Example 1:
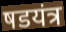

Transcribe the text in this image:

षडयंत्र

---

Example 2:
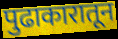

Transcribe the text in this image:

पुढाकारातून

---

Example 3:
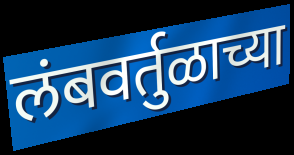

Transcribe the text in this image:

लंबवर्तुळाच्या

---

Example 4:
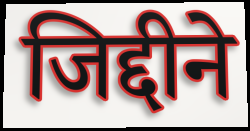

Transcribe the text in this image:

जिद्दीने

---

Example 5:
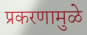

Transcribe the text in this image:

प्रकरणामुळे